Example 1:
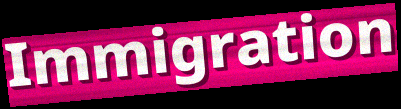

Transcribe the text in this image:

Immigration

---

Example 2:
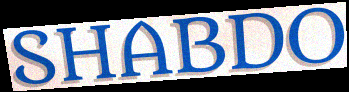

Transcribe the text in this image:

SHABDO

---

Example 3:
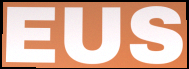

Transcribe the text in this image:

EUS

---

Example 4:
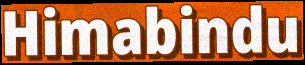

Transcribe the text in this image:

Himabindu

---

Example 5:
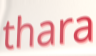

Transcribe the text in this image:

thara